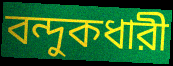
বন্দুকধারী